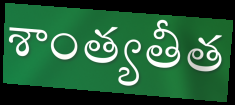
శాంత్యతీత